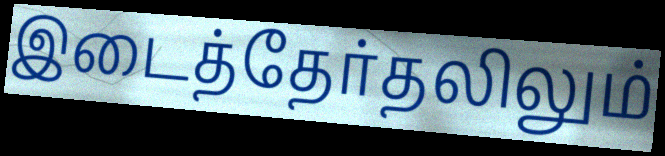
இடைத்தேர்தலிலும்